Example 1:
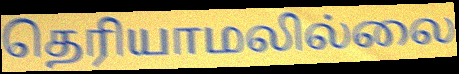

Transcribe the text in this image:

தெரியாமலில்லை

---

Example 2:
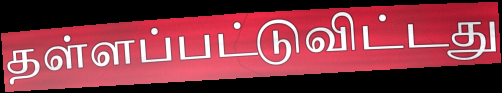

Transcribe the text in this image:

தள்ளப்பட்டுவிட்டது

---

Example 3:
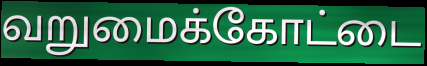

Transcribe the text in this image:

வறுமைக்கோட்டை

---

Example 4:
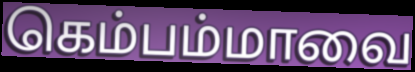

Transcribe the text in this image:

கெம்பம்மாவை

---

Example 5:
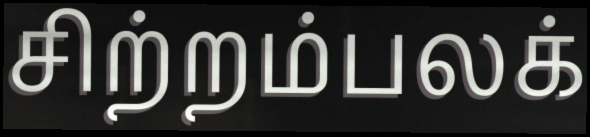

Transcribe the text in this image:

சிற்றம்பலக்